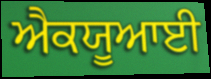
ਐਕਯੂਆਈ